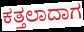
ಕತ್ತಲಾದಾಗ